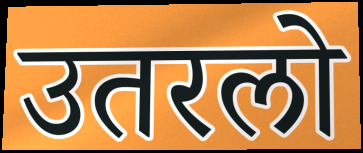
उतरलो